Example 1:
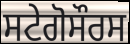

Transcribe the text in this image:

ਸਟੇਗੋਸੌਰਸ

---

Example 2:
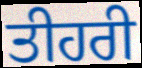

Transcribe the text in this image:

ਤੀਹਰੀ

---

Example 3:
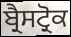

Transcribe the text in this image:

ਬ੍ਰੈਸਟ੍ਰੋਕ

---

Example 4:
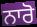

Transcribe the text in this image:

ਨਾਰੋ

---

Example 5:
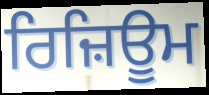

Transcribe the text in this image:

ਰਿਜ਼ਿਊਮ